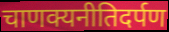
चाणक्यनीतिदर्पण